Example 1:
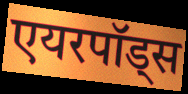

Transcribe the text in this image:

एयरपॉड्स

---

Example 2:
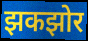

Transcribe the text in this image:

झकझोर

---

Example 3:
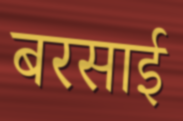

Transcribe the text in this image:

बरसाई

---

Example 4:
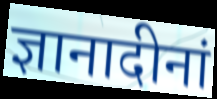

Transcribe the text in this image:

ज्ञानादीनां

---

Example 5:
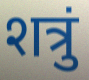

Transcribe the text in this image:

शत्रुं